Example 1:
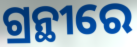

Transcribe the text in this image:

ଗ୍ରନ୍ଥୀରେ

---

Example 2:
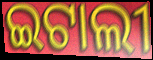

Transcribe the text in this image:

ଇଟାଲୀ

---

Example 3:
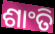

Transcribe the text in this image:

ଶାଂତି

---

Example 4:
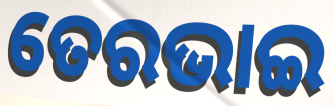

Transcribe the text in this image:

ତେରଭାଇ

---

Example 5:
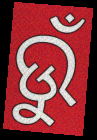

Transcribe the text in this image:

ଉୁଁ